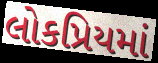
લોકપ્રિયમાં